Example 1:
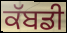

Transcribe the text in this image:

ਕੱਬਡੀ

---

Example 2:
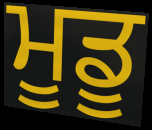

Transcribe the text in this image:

ਮੂਡੂ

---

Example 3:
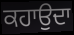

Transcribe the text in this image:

ਕਹਾਉਦਾ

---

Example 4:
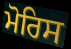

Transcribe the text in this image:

ਮੋਰਿਸ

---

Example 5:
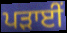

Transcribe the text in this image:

ਪੜਾਈਂ